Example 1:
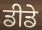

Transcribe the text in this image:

ਡੀਡੇ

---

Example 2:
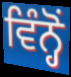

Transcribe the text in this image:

ਵਿੰਨ੍ਹੋਂ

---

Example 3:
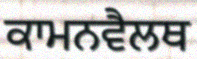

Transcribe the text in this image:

ਕਾਮਨਵੈਲਥ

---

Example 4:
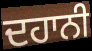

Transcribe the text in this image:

ਦਹਾਨੀ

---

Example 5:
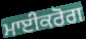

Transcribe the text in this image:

ਮਾਈਕਰੋਗ